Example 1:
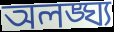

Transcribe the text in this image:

অলঙ্ঘ্য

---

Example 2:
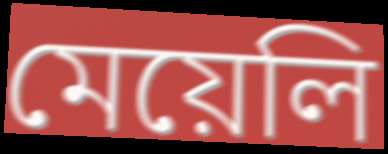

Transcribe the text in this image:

মেয়েলি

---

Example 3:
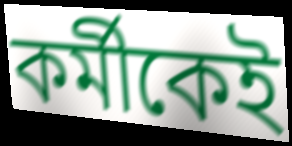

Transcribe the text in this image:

কর্মীকেই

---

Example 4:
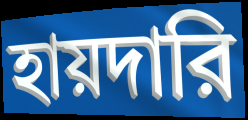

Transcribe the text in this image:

হায়দারি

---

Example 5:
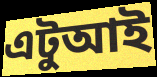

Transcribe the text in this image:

এটুআই